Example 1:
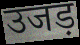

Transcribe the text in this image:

उजड़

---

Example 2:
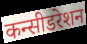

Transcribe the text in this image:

कन्सीडरेशन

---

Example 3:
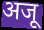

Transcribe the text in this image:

अजू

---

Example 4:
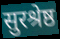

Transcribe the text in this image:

सुरश्रेष्ठ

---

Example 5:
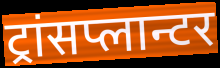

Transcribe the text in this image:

ट्रांसप्लान्टर